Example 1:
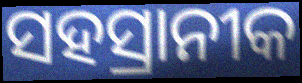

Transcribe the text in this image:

ସହସ୍ରାନୀକ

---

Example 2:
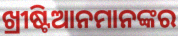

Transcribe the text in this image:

ଖ୍ରୀଷ୍ଟିଆନମାନଙ୍କର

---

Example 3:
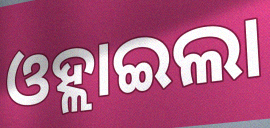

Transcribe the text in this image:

ଓହ୍ଲାଇଲା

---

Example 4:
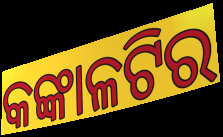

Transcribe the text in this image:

କଙ୍କାଳଟିର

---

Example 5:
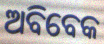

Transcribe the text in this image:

ଅବିବେକ